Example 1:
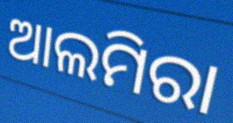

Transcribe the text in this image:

ଆଲମିରା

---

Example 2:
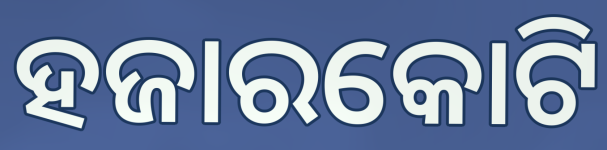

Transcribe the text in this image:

ହଜାରକୋଟି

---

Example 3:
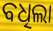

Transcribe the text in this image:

ବଧିଲା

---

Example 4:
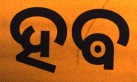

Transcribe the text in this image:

ହଵ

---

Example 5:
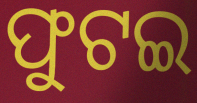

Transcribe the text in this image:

ଫୁଟଇ